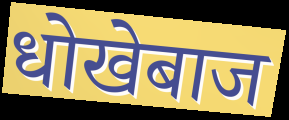
धोखेबाज